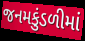
જનમકુંડળીમાં